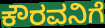
ಕೌರವನಿಗೆ